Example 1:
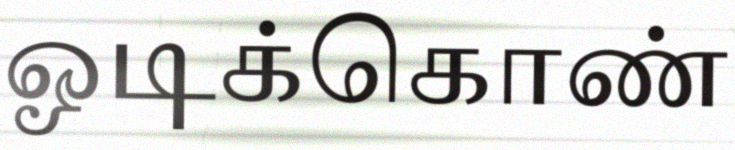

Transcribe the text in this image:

ஓடிக்கொண்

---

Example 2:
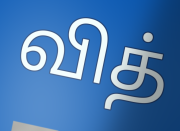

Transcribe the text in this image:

வித்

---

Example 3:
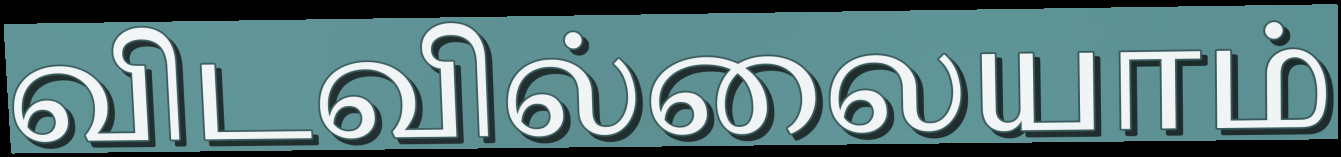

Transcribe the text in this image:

விடவில்லையாம்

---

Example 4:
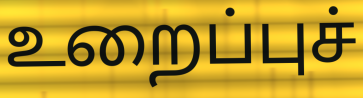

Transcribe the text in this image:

உறைப்புச்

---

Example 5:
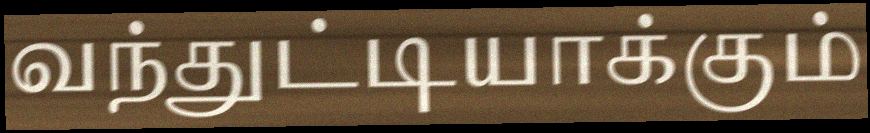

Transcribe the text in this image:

வந்துட்டியாக்கும்